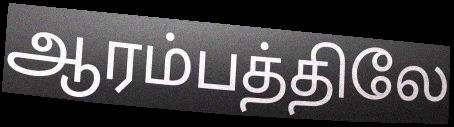
ஆரம்பத்திலே